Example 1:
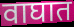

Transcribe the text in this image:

वाघात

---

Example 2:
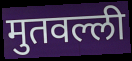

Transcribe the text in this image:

मुतवल्ली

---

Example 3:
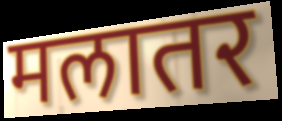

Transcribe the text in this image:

मलातर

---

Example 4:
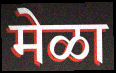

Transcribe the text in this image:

मेळा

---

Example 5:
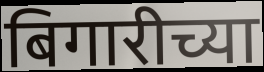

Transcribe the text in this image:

बिगारीच्या